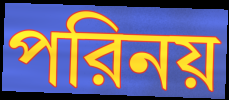
পরিনয়